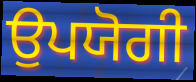
ਉਪਯੋਗੀ